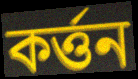
কর্ত্তন